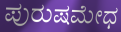
ಪುರುಷಮೇಧ